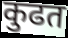
कुढत